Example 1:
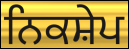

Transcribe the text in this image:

ਨਿਕਸ਼ੇਪ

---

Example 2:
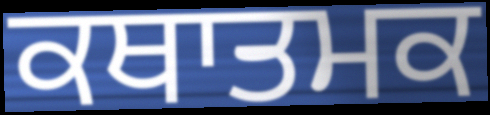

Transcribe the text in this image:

ਕਥਾਤਮਕ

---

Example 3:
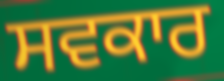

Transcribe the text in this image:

ਸਵਕਾਰ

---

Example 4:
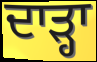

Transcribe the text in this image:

ਦਾੜ੍ਹਾ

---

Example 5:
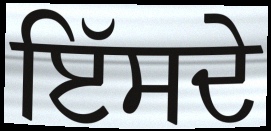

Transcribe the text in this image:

ਇੱਸਦੇ